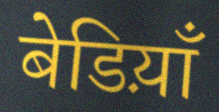
बेडिय़ाँ